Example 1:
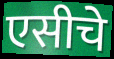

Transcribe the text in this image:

एसीचे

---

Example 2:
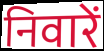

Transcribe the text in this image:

निवारें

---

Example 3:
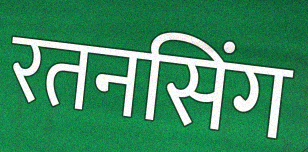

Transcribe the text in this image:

रतनसिंग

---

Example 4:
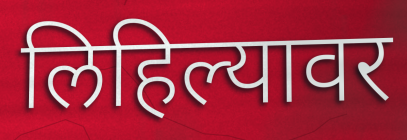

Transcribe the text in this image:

लिहिल्यावर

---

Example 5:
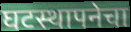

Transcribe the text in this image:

घटस्थापनेचा